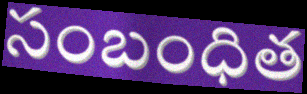
సంబంధిత